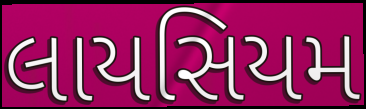
લાયસિયમ